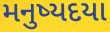
મનુષ્યદયા